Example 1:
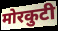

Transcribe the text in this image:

मोरकुटी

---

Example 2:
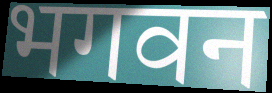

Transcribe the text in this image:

भगवन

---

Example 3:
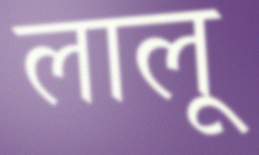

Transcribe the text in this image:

लालू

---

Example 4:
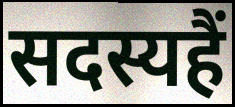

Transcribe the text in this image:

सदस्यहैं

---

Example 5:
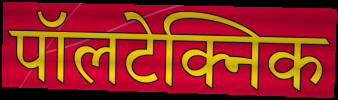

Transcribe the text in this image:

पॉलटेक्निक